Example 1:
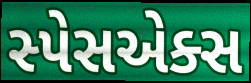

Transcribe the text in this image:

સ્પેસએક્સ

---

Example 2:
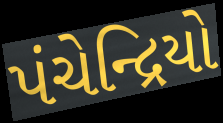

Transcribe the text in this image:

પંચેન્દ્રિયો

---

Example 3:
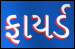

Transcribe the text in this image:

ફાયર્ડ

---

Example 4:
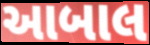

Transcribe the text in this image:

આબાલ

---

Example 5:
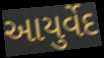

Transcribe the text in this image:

આયુર્વેદ